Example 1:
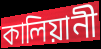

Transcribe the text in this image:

কালিয়ানী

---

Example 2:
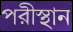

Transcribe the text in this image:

পরীস্থান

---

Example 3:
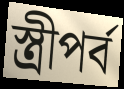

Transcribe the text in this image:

স্ত্রীপর্ব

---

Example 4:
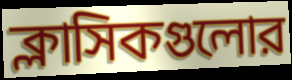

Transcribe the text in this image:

ক্লাসিকগুলোর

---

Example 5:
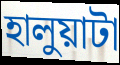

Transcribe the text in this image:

হালুয়াটা